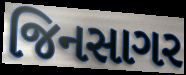
જિનસાગર